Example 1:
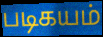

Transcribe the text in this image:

படிகயம்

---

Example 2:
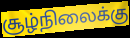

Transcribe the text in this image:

சூழ்நிலைக்கு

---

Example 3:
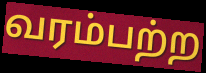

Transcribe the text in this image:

வரம்பற்ற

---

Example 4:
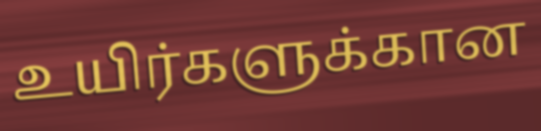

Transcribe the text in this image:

உயிர்களுக்கான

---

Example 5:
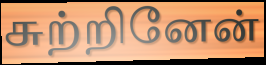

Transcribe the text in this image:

சுற்றினேன்